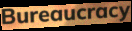
Bureaucracy